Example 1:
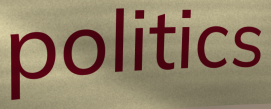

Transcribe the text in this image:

politics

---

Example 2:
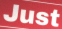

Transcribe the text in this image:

Just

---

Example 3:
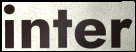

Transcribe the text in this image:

inter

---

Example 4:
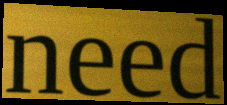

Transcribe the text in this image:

need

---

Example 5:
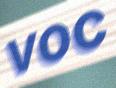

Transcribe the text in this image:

voc